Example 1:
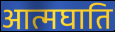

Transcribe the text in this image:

आत्मघाति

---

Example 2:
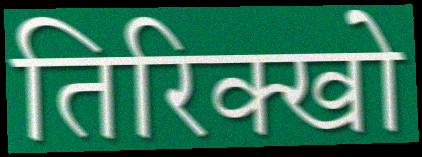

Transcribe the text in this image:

तिरिक्खो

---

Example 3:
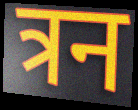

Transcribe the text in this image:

त्रन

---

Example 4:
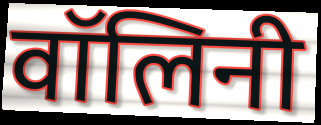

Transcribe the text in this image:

वॉलिनी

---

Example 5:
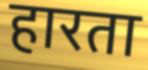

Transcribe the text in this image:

हारता